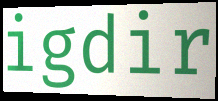
igdir